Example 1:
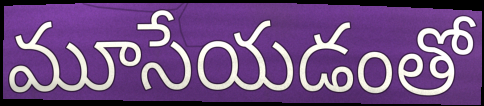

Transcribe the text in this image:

మూసేయడంతో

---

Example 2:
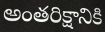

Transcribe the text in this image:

అంతరిక్షానికి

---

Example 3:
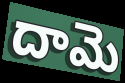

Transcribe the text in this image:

దామె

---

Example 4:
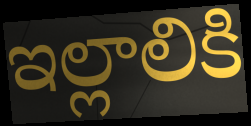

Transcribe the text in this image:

ఇల్లాలికి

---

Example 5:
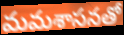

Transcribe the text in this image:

మమశాసనతో